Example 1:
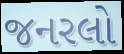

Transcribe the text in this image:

જનરલો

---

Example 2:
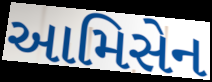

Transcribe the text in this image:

આમિસેન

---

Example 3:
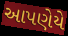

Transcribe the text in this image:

આપણેયે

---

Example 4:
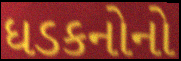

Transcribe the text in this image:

ધડકનોનો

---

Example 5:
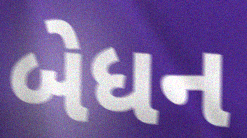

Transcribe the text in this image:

બેધન